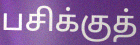
பசிக்குத்